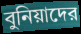
বুনিয়াদের